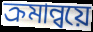
ক্রমান্বয়ে